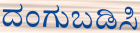
ದಂಗುಬಡಿಸಿ